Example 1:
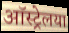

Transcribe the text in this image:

ऑस्ट्रेलया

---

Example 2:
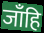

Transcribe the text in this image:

जाँहि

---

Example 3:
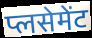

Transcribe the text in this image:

प्लसेमेंट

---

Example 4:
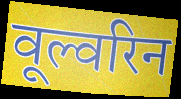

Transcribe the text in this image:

वूल्वरिन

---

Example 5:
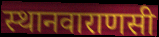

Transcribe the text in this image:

स्थानवाराणसी